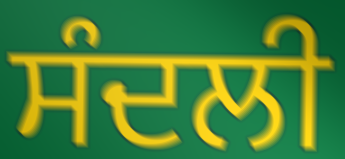
ਸੰਦਲੀ